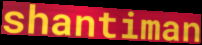
shantiman